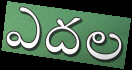
ఎదల